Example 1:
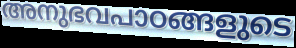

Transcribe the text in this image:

അനുഭവപാഠങ്ങളുടെ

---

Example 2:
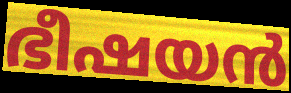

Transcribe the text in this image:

ഭീഷയൻ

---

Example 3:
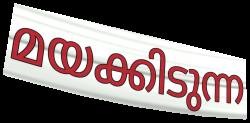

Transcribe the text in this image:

മയക്കിടുന്ന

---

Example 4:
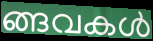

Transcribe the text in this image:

ങ്ങവകൾ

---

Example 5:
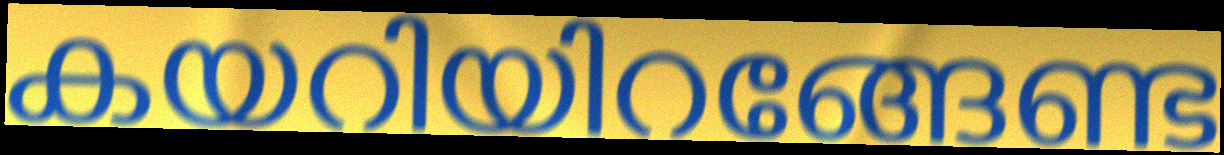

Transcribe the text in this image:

കയറിയിറങ്ങേണ്ട